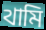
থামি